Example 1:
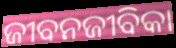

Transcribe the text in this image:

ଜୀବନଜୀବିକା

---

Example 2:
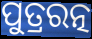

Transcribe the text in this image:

ପୁତ୍ରରତ୍ନ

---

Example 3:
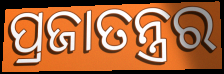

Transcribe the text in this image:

ପ୍ରଜାତନ୍ତ୍ରର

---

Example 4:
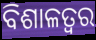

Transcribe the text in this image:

ବିଶାଳତ୍ୱର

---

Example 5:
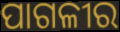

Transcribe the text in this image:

ପାଗଳୀର